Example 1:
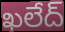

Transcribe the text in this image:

ఖలేద్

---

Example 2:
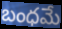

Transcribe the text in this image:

బంధమే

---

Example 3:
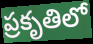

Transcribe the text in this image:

ప్రకృతిలో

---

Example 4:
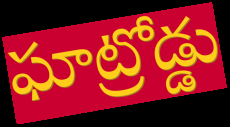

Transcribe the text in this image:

ఘాట్రోడ్డు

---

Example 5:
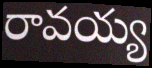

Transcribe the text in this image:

రావయ్య